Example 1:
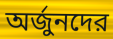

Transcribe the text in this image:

অর্জুনদের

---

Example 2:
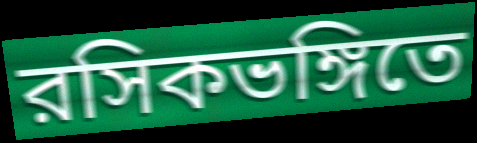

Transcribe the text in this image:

রসিকভঙ্গিতে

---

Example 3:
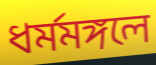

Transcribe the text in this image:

ধর্মমঙ্গলে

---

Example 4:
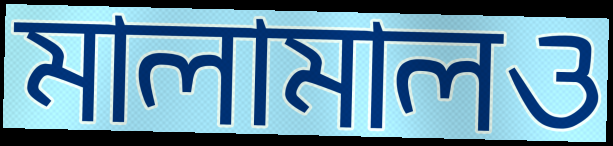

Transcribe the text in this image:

মালামালও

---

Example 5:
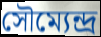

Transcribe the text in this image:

সৌম্যেন্দ্র